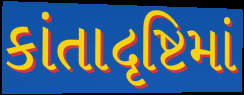
કાંતાદૃષ્ટિમાં